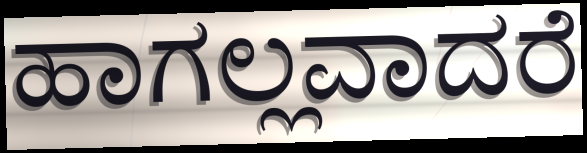
ಹಾಗಲ್ಲವಾದರೆ